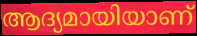
ആദ്യമായിയാണ്